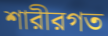
শারীরগত